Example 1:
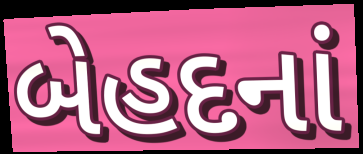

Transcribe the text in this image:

બેહદનાં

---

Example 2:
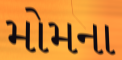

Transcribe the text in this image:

મોમના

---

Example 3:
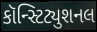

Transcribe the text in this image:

કૉન્સ્ટિટ્યુશનલ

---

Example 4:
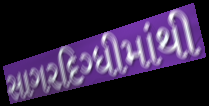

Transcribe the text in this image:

સાગરદિગ્ધીમાંથી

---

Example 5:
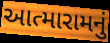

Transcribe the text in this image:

આત્મારામનું